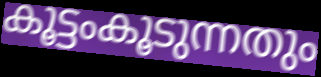
കൂട്ടംകൂടുന്നതും